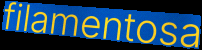
filamentosa